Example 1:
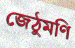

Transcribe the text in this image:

জেঠুমণি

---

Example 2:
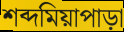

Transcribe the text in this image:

শব্দমিয়াপাড়া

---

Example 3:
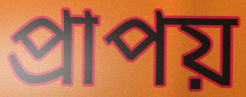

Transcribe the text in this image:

প্রাপয়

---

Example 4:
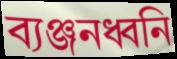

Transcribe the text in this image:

ব্যঞ্জনধ্বনি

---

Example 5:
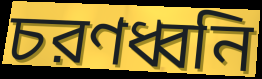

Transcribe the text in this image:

চরণধ্বনি